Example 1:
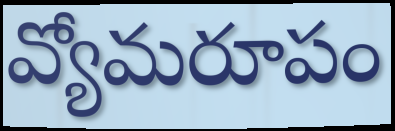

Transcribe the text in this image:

వ్యోమరూపం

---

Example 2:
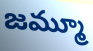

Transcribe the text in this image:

జమ్మూ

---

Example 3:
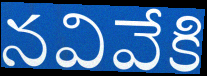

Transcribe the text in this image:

నవివేకి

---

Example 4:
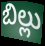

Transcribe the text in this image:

బిల్లు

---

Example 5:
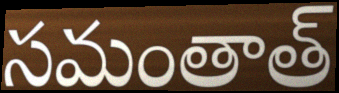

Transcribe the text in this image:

సమంతాత్